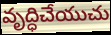
వృద్ధిచేయుచు